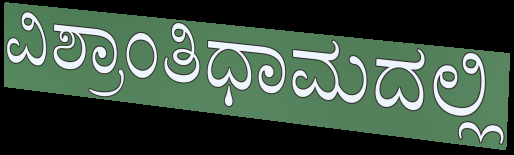
ವಿಶ್ರಾಂತಿಧಾಮದಲ್ಲಿ